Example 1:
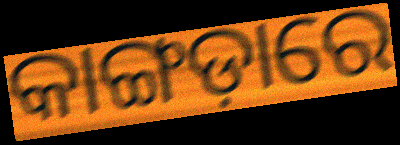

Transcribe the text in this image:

କାଙ୍ଗଡ଼ାରେ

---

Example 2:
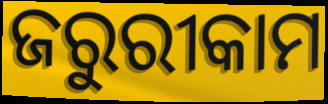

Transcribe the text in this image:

ଜରୁରୀକାମ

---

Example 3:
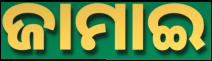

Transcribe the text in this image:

ଜାମାଇ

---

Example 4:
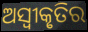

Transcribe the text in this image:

ଅସ୍ୱୀକୃତିର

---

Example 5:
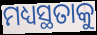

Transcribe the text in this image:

ମଧ୍ୟସ୍ଥତାକୁ